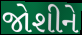
જોશીને